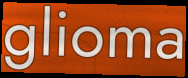
glioma